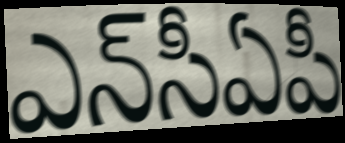
ఎన్‌సీఏపీ